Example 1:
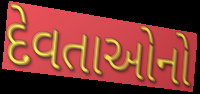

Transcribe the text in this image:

દેવતાઓનો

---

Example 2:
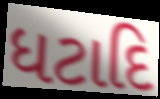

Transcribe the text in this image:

ધટાદિ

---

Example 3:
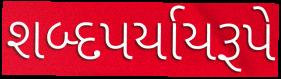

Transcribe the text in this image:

શબ્દપર્યાયરૂપે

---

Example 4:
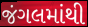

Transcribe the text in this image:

જંગલમાંથી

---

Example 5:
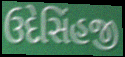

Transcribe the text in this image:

ઉદેસિંહજી